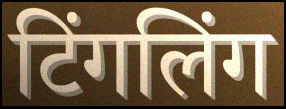
टिंगलिंग